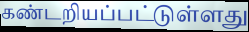
கண்டறியப்பட்டுள்ளது